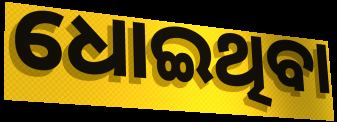
ଧୋଇଥିବା